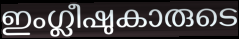
ഇംഗ്ലീഷുകാരുടെ